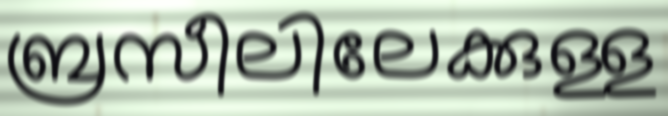
ബ്രസീലിലേക്കുള്ള